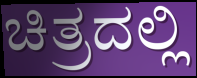
ಚಿತ್ರದಲ್ಲಿ